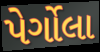
પેર્ગોલા